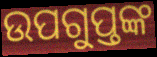
ଉପଗୁପ୍ତଙ୍କ